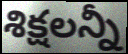
శిక్షలన్నీ